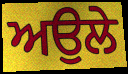
ਅਉਲੇ